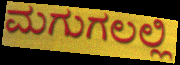
ಮಗುಗಲಲ್ಲಿ